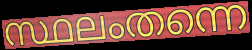
സ്ഥലംതന്നെ